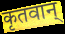
कृतवान्